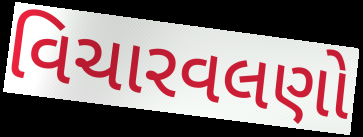
વિચારવલણો